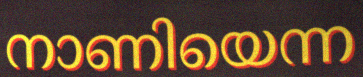
നാണിയെന്ന